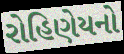
રોહિણેયનો